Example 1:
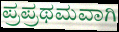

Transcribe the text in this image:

ಪ್ರಪ್ರಥಮವಾಗಿ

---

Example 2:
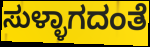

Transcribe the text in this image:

ಸುಳ್ಳಾಗದಂತೆ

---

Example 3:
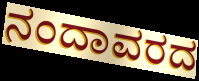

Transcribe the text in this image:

ನಂದಾವರದ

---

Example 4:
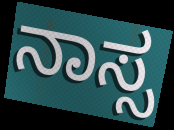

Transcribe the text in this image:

ನಾಸ್ಸ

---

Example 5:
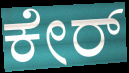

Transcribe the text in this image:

ಕೇರ್